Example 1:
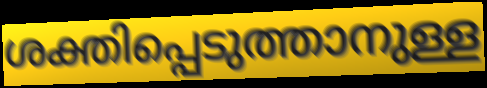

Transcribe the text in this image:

ശക്തിപ്പെടുത്താനുള്ള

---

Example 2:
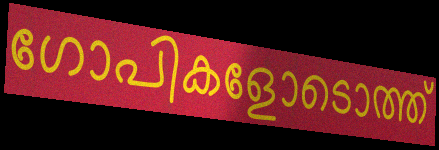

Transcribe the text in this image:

ഗോപികളോടൊത്ത്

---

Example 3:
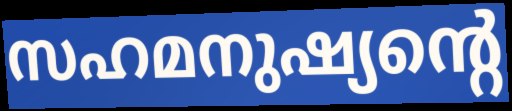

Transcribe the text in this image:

സഹമനുഷ്യന്റെ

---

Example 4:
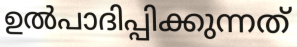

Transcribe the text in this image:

ഉൽപാദിപ്പിക്കുന്നത്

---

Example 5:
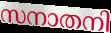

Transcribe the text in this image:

സനാതനി